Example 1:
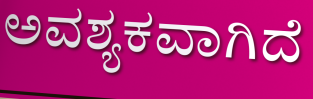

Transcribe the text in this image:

ಅವಶ್ಯಕವಾಗಿದೆ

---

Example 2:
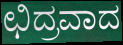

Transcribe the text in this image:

ಛಿದ್ರವಾದ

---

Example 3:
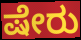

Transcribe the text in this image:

ಷೇರು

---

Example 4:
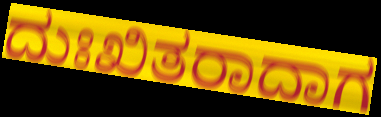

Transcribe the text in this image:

ದುಃಖಿತರಾದಾಗ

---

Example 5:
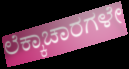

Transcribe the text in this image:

ಲೆಕ್ಕಾಚಾರಗಳೇ